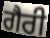
ਗੈਰੀ